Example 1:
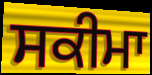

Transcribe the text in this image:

ਸਕੀਮਾ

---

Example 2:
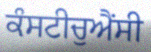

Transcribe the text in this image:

ਕੰਸਟੀਚੁਐਂਸੀ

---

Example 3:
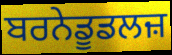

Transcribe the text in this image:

ਬਰਨੇਡੂਡਲਜ਼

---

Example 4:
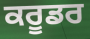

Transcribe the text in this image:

ਕਰੂਡਰ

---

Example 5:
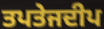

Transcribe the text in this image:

ਤਪਤੇਜਦੀਪ